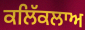
ਕਲਿੱਕਲਾਅ